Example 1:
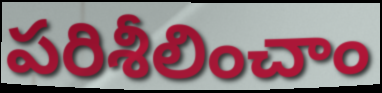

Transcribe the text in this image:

పరిశీలించాం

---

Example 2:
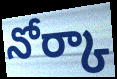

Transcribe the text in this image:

నోర్కా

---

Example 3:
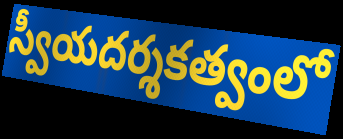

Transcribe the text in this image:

స్వీయదర్శకత్వంలో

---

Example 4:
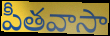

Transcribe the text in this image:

పీతవాసా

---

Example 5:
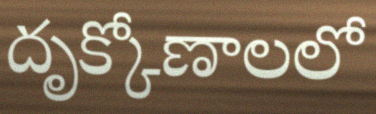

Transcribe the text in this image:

దృక్కోణాలలో